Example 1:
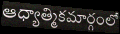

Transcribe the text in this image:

ఆధ్యాత్మికమార్గంలో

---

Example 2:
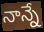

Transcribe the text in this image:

నాన్నే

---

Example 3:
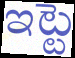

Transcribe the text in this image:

ఇట్టె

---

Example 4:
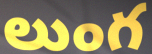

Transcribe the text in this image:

లుంగ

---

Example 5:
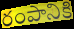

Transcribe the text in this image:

రంపానికి